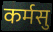
कर्मसु